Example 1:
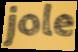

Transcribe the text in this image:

jole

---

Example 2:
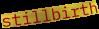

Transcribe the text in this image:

stillbirth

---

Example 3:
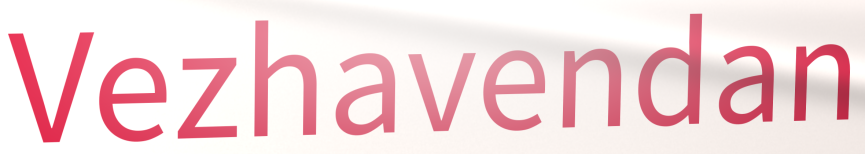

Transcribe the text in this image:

Vezhavendan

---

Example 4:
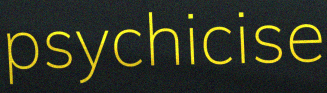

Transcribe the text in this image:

psychicise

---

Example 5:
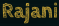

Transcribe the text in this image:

Rajani